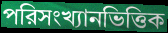
পরিসংখ্যানভিত্তিক